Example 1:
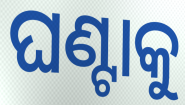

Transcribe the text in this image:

ଘଣ୍ଟାକୁ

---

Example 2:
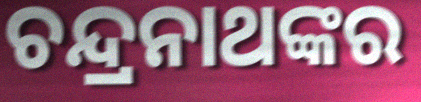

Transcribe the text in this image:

ଚନ୍ଦ୍ରନାଥଙ୍କର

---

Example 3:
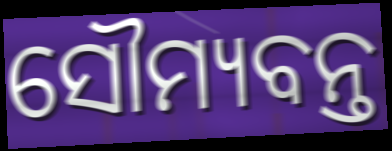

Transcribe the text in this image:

ସୌମ୍ୟବନ୍ତ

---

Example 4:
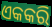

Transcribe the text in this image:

ଏକକରି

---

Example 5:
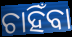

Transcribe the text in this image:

ଚାହିଁବା